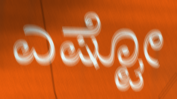
ಎಷ್ಟೋ